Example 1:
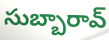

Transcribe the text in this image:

సుబ్బారావ్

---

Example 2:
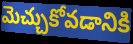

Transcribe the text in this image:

మెచ్చుకోవడానికి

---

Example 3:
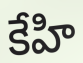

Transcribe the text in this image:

కేహి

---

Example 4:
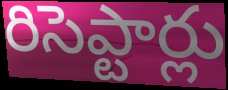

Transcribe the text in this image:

రిసెప్టార్లు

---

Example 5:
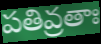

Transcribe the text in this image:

పతివ్రతాః